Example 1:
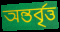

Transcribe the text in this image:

অন্তৰ্বৃত্ত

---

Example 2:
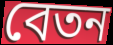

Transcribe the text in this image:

বেতন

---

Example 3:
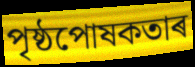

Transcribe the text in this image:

পৃষ্ঠপোষকতাৰ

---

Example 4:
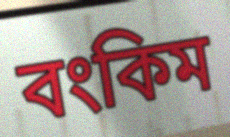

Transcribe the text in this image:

বংকিম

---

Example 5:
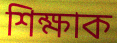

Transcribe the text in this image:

শিক্ষাক